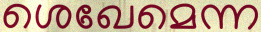
ശെഖേമെന്ന